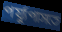
পর্য্যুপাসতে